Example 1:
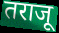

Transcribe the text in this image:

तराजू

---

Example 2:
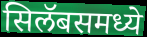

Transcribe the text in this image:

सिलॅबसमध्ये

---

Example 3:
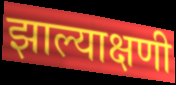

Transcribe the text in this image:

झाल्याक्षणी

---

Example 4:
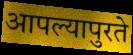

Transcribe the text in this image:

आपल्यापुरते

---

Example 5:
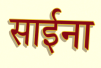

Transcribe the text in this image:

साईना